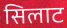
सिलाट